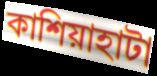
কাশিয়াহাটা